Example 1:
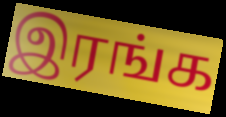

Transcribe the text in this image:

இரங்க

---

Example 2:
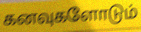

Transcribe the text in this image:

கனவுகளோடும்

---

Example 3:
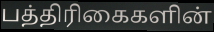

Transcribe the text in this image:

பத்திரிகைகளின்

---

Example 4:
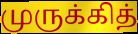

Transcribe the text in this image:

முருக்கித்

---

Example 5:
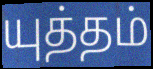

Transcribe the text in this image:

யுத்தம்